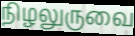
நிழலுருவை